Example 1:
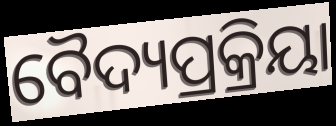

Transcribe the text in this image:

ବୈଦ୍ୟପ୍ରକ୍ରିୟା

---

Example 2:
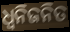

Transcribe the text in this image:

ଧ୍ଵନିଜନିତ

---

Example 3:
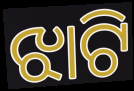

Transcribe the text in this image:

ଝାଟି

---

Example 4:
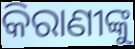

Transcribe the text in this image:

କିରାଣୀଙ୍କୁ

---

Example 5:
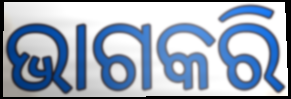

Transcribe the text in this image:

ଭାଗକରି